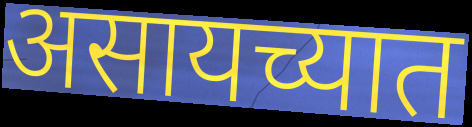
असायच्यात